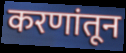
करणांतून